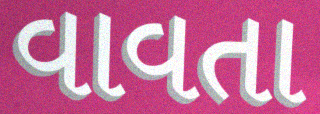
વાવતા